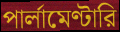
পার্লামেণ্টারি